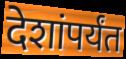
देशांपर्यंत